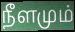
நீளமும்